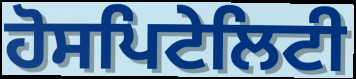
ਹੋਸਪਿਟੇਲਿਟੀ